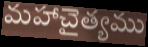
మహాచైత్యము